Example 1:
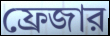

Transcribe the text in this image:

ফ্রেজার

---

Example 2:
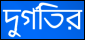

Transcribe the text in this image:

দুর্গতির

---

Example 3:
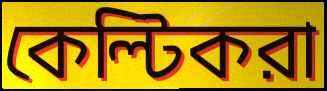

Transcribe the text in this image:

কেল্টিকরা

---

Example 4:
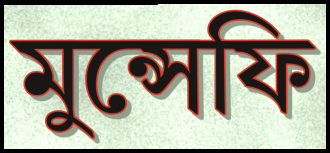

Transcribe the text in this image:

মুন্সেফি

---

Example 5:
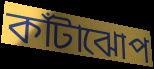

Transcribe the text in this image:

কাঁটাঝোপ